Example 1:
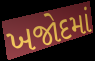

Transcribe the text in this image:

ખજોદમાં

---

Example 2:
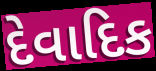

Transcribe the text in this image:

દેવાદિક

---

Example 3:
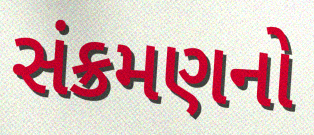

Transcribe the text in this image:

સંક્રમણનો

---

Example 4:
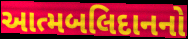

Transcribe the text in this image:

આત્મબલિદાનનો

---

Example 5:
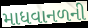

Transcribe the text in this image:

માધવાનળની